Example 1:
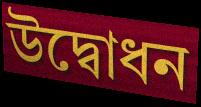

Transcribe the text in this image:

উদ্বোধন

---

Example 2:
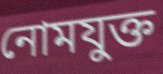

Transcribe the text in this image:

নোমযুক্ত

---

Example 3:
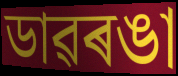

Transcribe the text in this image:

ডাৱৰঙা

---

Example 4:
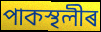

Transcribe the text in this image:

পাকস্থলীৰ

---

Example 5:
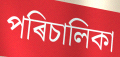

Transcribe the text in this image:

পৰিচালিকা